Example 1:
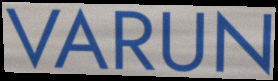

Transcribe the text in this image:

VARUN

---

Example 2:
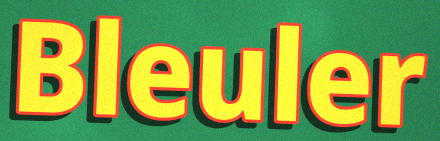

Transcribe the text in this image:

Bleuler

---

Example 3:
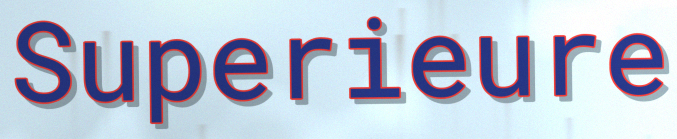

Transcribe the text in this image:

Superieure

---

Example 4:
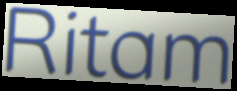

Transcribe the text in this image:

Ritam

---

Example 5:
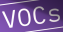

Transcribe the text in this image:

VOCs